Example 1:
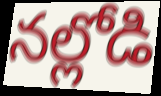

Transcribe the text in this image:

నల్లోడి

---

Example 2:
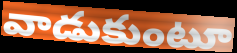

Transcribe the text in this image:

వాడుకుంటూ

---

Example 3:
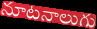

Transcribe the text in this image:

నూటనాలుగు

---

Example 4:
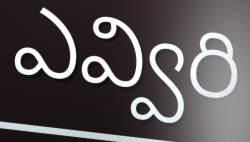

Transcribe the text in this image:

ఎవ్విరి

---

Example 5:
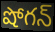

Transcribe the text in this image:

షోగన్